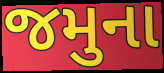
જમુના